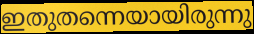
ഇതുതന്നെയായിരുന്നു